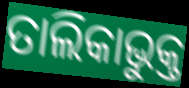
ତାଲିକାଭୁକ୍ତ